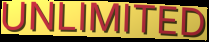
UNLIMITED